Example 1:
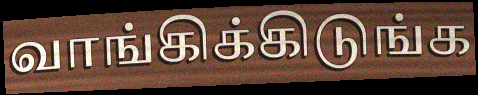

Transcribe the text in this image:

வாங்கிக்கிடுங்க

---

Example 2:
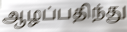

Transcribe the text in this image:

ஆழப்பதிந்து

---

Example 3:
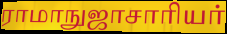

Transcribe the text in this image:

ராமாநுஜாசாரியர்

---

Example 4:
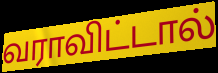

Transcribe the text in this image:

வராவிட்டால்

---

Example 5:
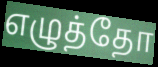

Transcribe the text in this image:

எழுத்தோ